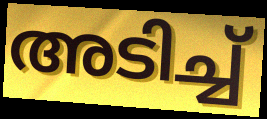
അടിച്ച്